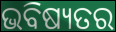
ଭବିଷ୍ୟତର